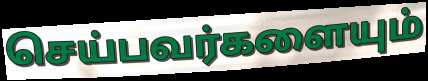
செய்பவர்களையும்